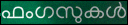
ഫംഗസുകൾ